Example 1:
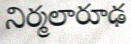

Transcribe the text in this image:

నిర్మలారూఢ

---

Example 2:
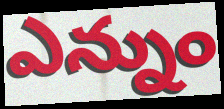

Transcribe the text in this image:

ఎన్నుం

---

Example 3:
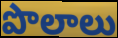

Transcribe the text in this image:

పొలాలు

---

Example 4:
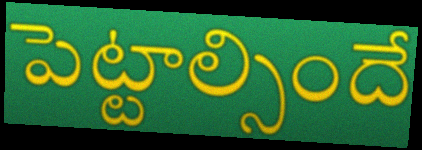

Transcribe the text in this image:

పెట్టాల్సిందే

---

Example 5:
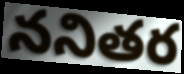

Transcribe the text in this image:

ననితర